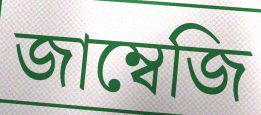
জাম্বেজি